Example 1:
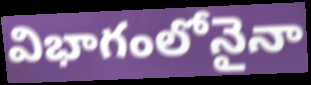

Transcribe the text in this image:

విభాగంలోనైనా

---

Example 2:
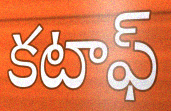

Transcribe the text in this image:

కటాఫ్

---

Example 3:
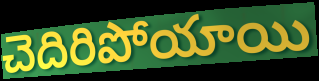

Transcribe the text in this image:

చెదిరిపోయాయి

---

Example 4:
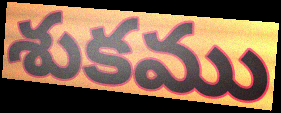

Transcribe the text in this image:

శుకము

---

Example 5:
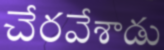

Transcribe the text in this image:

చేరవేశాడు